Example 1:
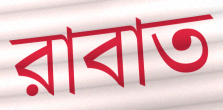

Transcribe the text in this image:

রাবাত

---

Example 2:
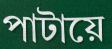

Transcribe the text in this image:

পাটায়ে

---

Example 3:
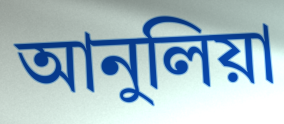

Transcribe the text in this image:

আনুলিয়া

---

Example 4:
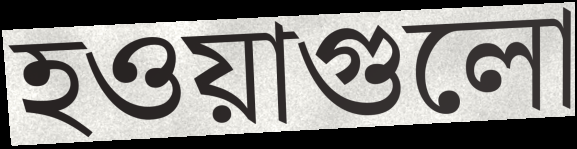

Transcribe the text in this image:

হওয়াগুলো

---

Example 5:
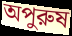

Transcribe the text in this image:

অপুরুষ